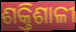
ଶକ୍ତିଶାଳୀ